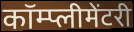
कॉम्प्लीमेंटरी